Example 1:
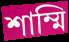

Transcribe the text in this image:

শাম্মি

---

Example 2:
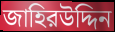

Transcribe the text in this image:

জাহিরউদ্দিন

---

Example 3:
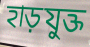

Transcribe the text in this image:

হাড়যুক্ত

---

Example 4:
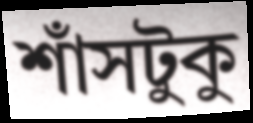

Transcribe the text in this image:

শাঁসটুকু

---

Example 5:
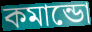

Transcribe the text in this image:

কমান্ডো